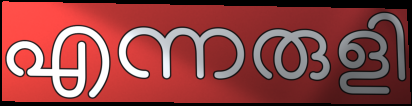
എന്നരുളി